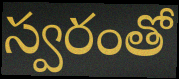
స్వరంతో